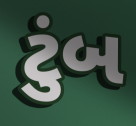
ટુંબ